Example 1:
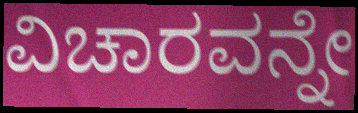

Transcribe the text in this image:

ವಿಚಾರವನ್ನೇ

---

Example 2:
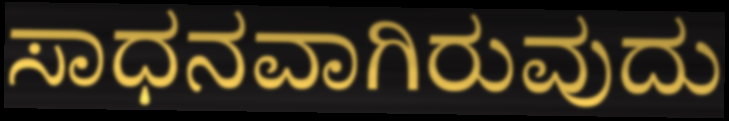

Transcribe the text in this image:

ಸಾಧನವಾಗಿರುವುದು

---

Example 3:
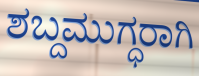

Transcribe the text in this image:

ಶಬ್ದಮುಗ್ಧರಾಗಿ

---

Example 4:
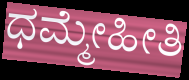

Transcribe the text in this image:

ಧಮ್ಮೇಹೀತಿ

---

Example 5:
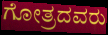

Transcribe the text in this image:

ಗೋತ್ರದವರು